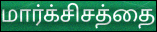
மார்க்சிசத்தை